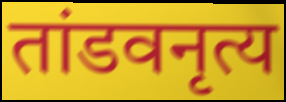
तांडवनृत्य